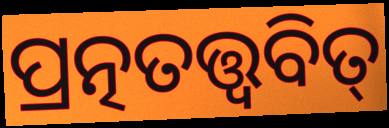
ପ୍ରତ୍ନତତ୍ତ୍ଵବିତ୍